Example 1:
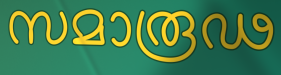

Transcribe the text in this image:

സമാരൂഢ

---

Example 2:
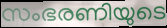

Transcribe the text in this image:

സംഭരണിയുടെ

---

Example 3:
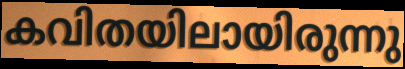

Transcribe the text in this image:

കവിതയിലായിരുന്നു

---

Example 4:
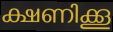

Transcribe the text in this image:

ക്ഷണിക്കൂ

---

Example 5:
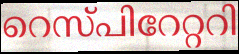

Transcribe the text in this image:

റെസ്പിറേറ്ററി